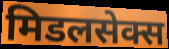
मिडलसेक्स